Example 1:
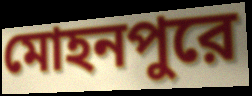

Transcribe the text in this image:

মোহনপুরে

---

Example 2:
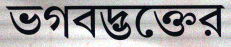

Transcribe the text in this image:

ভগবদ্ভক্তের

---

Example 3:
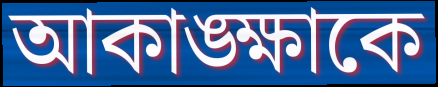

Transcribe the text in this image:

আকাঙ্ক্ষাকে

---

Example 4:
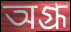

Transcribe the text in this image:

অগ্রূ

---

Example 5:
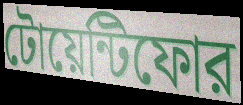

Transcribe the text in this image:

টোয়েন্টিফোর